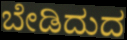
ಬೇಡಿದುದ